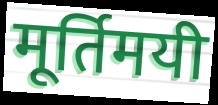
मूर्तिमयी